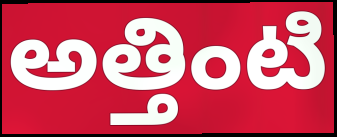
అత్తింటి